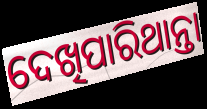
ଦେଖିପାରିଥାନ୍ତା